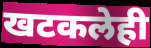
खटकलेही